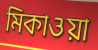
মিকাওয়া